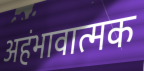
अहंभावात्मक